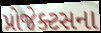
પ્રોજેક્ટસના